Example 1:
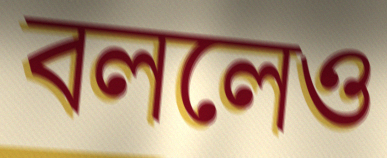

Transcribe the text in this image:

বললেও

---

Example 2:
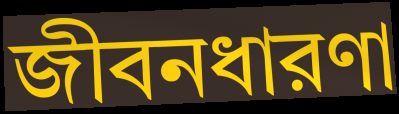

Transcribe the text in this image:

জীবনধারণা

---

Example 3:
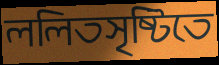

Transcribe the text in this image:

ললিতসৃষ্টিতে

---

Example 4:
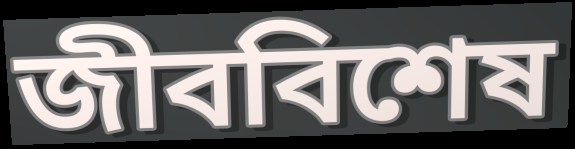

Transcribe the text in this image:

জীববিশেষ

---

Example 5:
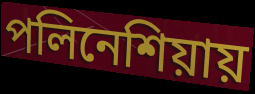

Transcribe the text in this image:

পলিনেশিয়ায়